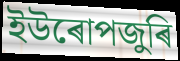
ইউৰোপজুৰি